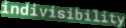
indivisibility